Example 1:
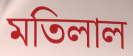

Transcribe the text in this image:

মতিলাল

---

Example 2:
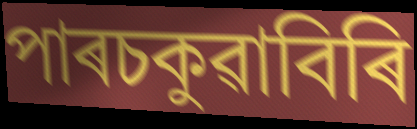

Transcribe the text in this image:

পাৰচকুৱাবিৰি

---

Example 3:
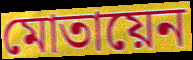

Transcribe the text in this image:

মোতায়েন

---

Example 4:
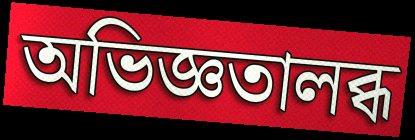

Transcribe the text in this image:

অভিজ্ঞতালব্ধ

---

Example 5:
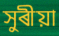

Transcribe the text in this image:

সুৰীয়া